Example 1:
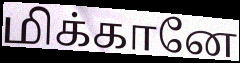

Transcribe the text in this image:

மிக்கானே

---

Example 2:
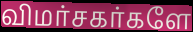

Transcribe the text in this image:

விமர்சகர்களே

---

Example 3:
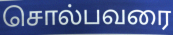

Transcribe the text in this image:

சொல்பவரை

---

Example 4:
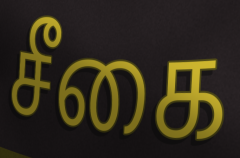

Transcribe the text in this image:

சீகை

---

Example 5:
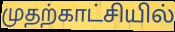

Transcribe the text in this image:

முதற்காட்சியில்